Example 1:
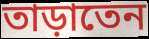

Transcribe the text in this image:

তাড়াতেন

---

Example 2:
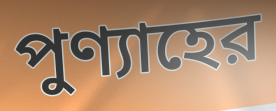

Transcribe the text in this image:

পুণ্যাহের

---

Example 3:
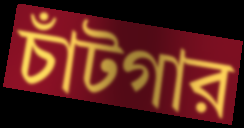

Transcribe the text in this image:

চাঁটগার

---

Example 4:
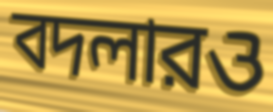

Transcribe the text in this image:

বদলারও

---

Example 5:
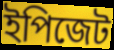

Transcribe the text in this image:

ইপিজেট